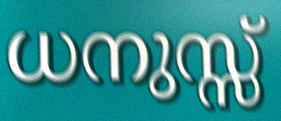
ധനുസ്സ്